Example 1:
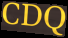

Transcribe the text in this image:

CDQ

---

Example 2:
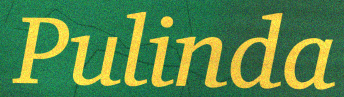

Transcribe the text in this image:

Pulinda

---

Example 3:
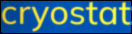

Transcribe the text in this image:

cryostat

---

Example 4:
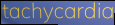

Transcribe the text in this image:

tachycardia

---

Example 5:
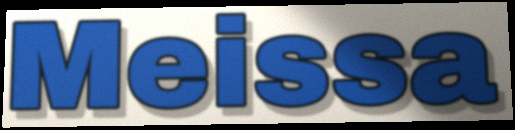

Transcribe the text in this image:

Meissa